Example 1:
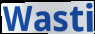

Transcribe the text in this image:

Wasti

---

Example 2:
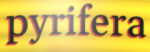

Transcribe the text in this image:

pyrifera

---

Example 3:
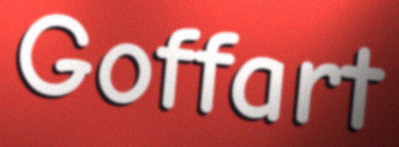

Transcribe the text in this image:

Goffart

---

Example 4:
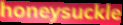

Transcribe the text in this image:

honeysuckle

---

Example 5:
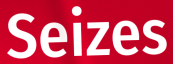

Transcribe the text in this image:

Seizes